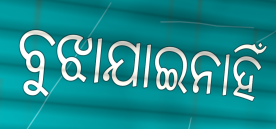
ବୁଝାଯାଇନାହିଁ